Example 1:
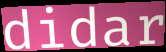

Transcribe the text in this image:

didar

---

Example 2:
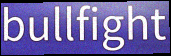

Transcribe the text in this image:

bullfight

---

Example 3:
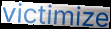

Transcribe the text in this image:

victimize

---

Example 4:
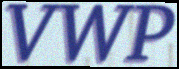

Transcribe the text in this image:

VWP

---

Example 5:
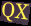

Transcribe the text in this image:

QX